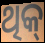
ଥିକ୍